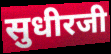
सुधीरजी